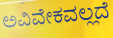
ಅವಿವೇಕವಲ್ಲದೆ